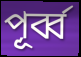
পূর্ব্ব